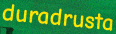
duradrusta